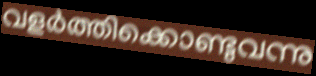
വളർത്തിക്കൊണ്ടുവന്നു